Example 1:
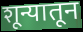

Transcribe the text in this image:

शून्यातून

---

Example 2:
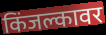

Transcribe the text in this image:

किंजल्कावर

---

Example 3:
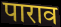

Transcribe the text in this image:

पाराव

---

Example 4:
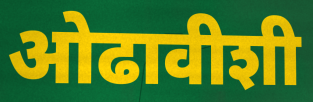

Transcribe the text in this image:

ओढावीशी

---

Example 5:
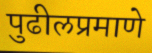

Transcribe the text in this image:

पुढीलप्रमाणे